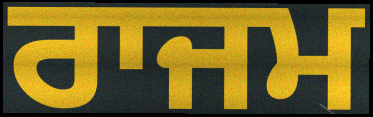
ਰਾਜਮ